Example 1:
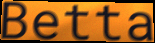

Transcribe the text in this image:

Betta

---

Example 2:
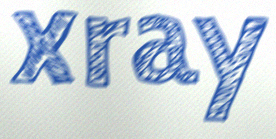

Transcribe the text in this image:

xray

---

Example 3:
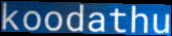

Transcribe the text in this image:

koodathu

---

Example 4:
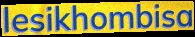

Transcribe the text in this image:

lesikhombisa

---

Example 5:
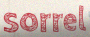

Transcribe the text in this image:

sorrel